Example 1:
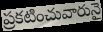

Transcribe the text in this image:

ప్రకటించువారునై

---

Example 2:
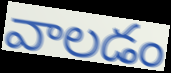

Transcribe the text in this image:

వాలడం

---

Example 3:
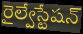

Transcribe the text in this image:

రైల్వేస్టేషన్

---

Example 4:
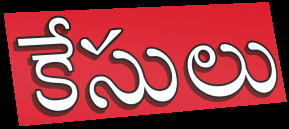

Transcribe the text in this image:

కేసులు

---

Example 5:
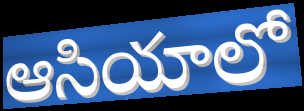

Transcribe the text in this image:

ఆసియాలో